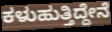
ಕಳುಹುತ್ತಿದ್ದೇನೆ